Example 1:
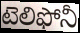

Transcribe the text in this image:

టెలిఫోనీ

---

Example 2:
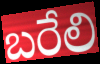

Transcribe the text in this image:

బరేలి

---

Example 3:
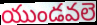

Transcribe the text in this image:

యుండవలె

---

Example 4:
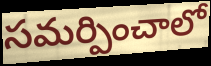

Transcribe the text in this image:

సమర్పించాలో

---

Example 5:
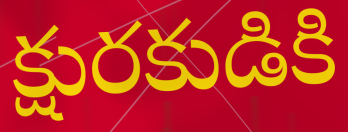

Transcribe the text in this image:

క్షురకుడికి